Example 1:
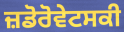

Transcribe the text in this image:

ਜ਼ਡੋਰੋਵੇਟਸਕੀ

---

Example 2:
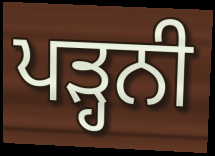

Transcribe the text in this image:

ਪੜ੍ਹਨੀ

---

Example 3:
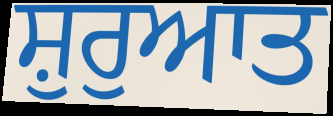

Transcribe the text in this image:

ਸ਼ੁਰੁਆਤ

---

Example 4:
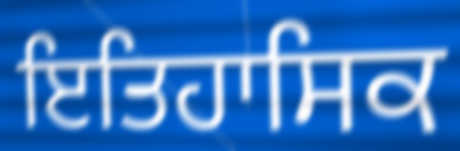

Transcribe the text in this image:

ਇਤਿਹਾਸਿਕ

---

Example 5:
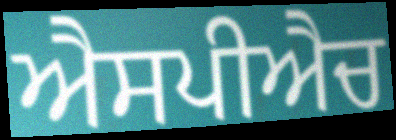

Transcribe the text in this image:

ਐਸਪੀਐਚ